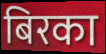
बिरका